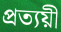
প্ৰত্যয়ী